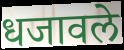
धजावले